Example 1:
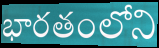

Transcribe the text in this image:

భారతంలోని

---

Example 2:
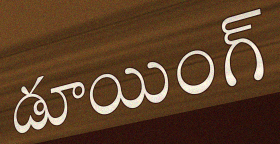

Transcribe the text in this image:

డూయింగ్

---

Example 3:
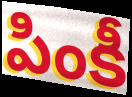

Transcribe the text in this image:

పింకీ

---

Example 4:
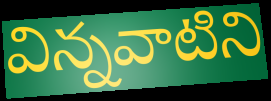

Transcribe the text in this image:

విన్నవాటిని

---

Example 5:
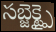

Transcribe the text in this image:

సబ్జెక్ట్పై